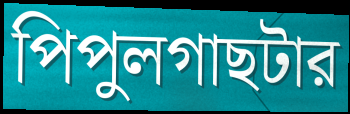
পিপুলগাছটার